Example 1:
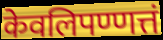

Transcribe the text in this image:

केवलिपण्णत्तं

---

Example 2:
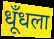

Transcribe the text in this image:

धूँधला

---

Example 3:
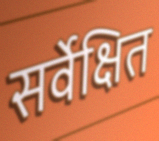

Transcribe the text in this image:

सर्वेक्षित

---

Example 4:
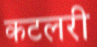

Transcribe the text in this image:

कटलरी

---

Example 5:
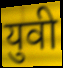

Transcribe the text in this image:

युवी